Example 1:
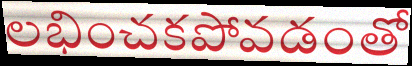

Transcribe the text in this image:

లభించకపోవడంతో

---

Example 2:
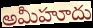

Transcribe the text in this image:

అమీహూదు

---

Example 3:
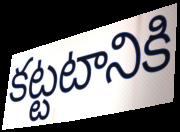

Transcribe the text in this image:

కట్టటానికి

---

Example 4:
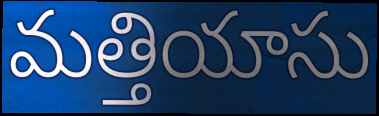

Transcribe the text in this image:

మత్తియాసు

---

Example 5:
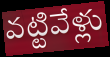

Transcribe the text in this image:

వట్టివేళ్లు